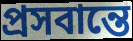
প্রসবান্তে